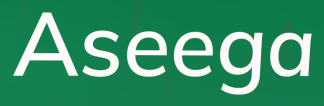
Aseega